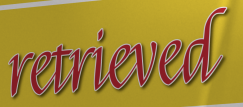
retrieved